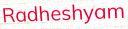
Radheshyam